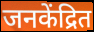
जनकेंद्रित